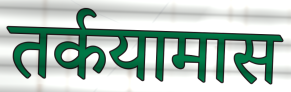
तर्कयामास